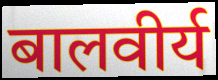
बालवीर्य